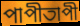
পাপীতাপী